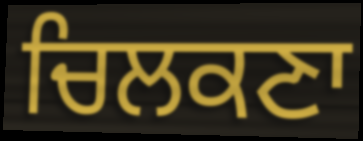
ਚਿਲਕਣਾ